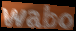
wabo